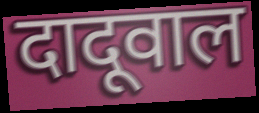
दादूवाल